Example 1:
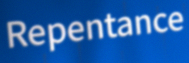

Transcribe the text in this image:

Repentance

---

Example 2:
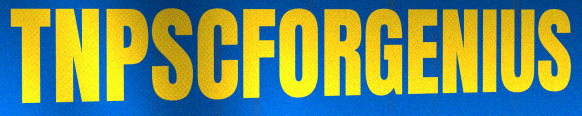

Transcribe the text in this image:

TNPSCFORGENIUS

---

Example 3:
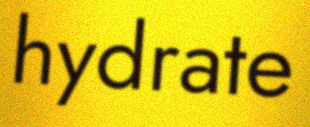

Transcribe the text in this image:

hydrate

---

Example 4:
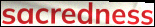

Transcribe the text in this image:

sacredness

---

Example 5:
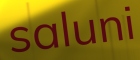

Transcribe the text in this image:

saluni